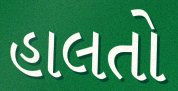
હાલતો